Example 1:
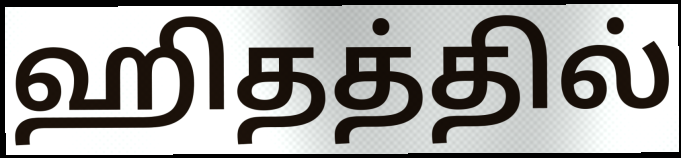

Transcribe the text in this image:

ஹிதத்தில்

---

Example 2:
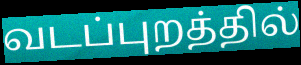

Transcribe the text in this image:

வடப்புறத்தில்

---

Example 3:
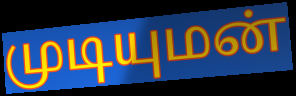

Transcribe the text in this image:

முடியுமன்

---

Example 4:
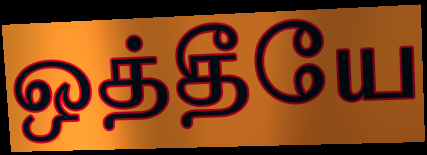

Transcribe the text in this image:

ஒத்தீயே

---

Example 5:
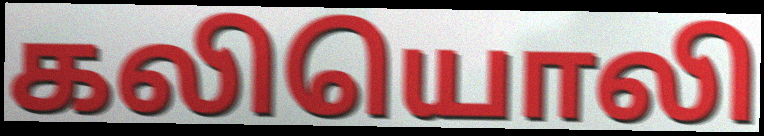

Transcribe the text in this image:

கலியொலி